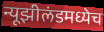
न्यूझीलंडमध्येच